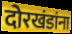
दोरखंडांना